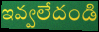
ఇవ్వలేదండి